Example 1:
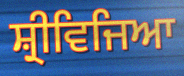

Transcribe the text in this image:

ਸ਼੍ਰੀਵਿਜਿਆ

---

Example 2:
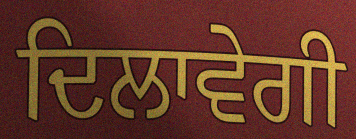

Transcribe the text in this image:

ਦਿਲਾਵੇਗੀ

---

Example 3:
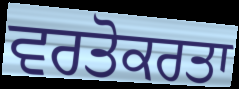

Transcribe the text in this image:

ਵਰਤੋਕਰਤਾ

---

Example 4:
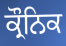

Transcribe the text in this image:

ਕ੍ਰੌਨਿਕ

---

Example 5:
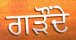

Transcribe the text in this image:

ਗੜੌਂਦੇ